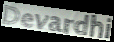
Devardhi